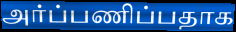
அர்ப்பணிப்பதாக